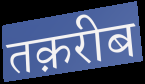
तक़रीब